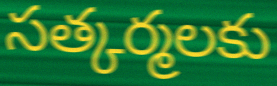
సత్కర్మలకు